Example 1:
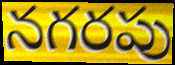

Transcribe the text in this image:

నగరపు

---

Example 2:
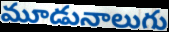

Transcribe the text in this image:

మూడునాలుగు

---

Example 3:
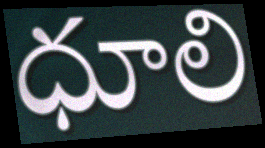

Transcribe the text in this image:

ధూలి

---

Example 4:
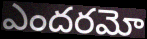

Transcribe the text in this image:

ఎందరమో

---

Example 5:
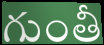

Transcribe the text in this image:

గుంతీ